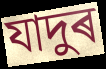
যাদুৰ